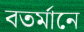
বতর্মানে